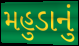
મહુડાનું